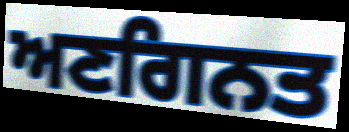
ਅਣਗਿਨਤ